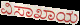
ವಿಸಾಖಾಯ